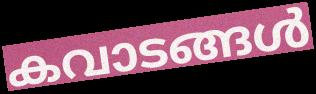
കവാടങ്ങൾ